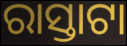
ରାସ୍ତାଟା